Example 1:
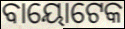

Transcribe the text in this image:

ବାୟୋଟେକ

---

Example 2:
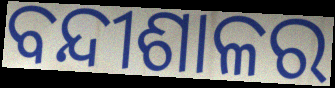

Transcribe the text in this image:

ବନ୍ଦୀଶାଳର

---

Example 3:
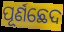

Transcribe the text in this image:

ପୂର୍ଣଛେଦ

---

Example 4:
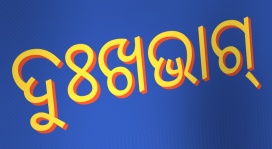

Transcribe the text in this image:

ଦୁଃଖଭାଗ୍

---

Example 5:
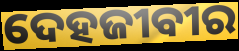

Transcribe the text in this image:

ଦେହଜୀବୀର